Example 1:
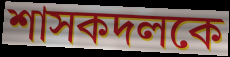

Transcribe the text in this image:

শাসকদলকে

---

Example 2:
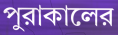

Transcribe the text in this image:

পুরাকালের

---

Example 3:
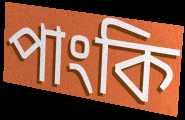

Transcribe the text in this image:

পাংকি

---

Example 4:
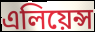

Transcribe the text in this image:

এলিয়েন্স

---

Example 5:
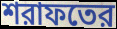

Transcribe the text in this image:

শরাফতের